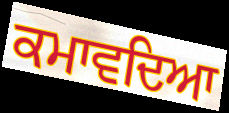
ਕਮਾਵਦਿਆ